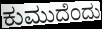
ಕುಮುದೆಂದು